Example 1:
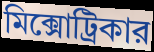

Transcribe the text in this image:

মিক্সোট্রিকার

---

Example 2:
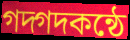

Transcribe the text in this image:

গদ্গদকন্ঠে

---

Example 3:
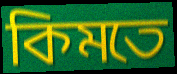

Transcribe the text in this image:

কিমতে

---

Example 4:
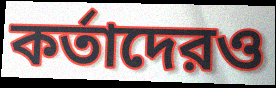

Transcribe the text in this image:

কর্তাদেরও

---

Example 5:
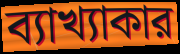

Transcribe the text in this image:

ব্যাখ্যাকার